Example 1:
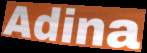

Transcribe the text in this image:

Adina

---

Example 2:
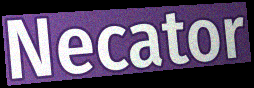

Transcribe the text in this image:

Necator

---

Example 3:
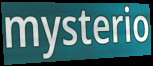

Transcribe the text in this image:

mysterio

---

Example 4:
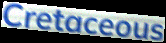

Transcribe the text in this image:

Cretaceous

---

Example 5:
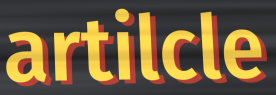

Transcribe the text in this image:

artilcle